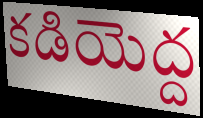
కడియెద్ద